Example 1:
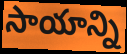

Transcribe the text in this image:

సాయాన్ని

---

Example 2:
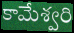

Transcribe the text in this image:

కామేశ్వరి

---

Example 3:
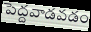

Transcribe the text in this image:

పెద్దవాడవడం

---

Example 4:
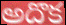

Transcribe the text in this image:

అదొక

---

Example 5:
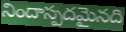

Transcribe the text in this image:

నిందాస్పదమైనది